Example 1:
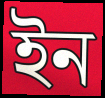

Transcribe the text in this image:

ইন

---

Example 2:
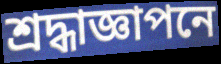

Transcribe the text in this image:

শ্রদ্ধাজ্ঞাপনে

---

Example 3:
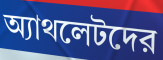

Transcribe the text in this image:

অ্যাথলেটদের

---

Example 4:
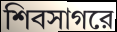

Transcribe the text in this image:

শিবসাগরে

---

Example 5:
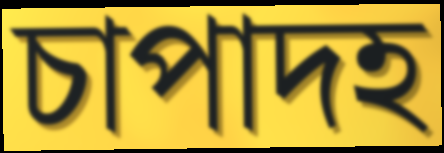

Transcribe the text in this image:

চাপাদহ